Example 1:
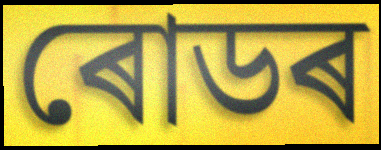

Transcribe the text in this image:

ৰোডৰ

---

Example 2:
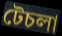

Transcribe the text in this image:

টেচলা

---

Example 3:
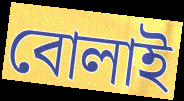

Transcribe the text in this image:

বোলাই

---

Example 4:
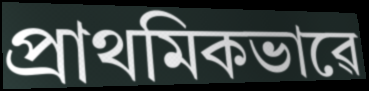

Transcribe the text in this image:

প্ৰাথমিকভাৱে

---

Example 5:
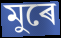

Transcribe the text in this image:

মুৰে